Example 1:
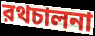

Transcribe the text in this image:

রথচালনা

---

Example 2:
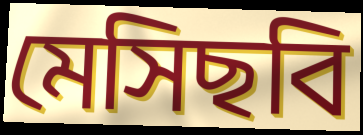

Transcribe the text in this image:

মেসিছবি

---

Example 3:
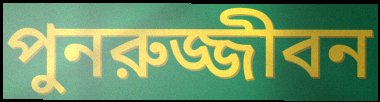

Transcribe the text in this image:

পুনরুজ্জীবন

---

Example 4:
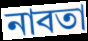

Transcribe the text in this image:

নাবতা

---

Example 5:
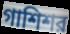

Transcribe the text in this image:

গাশিশর